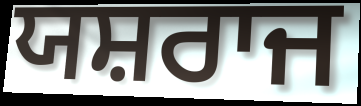
ਯਸ਼ਰਾਜ